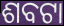
ଶବଟା